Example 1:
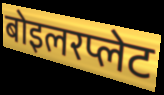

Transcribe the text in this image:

बोइलरप्लेट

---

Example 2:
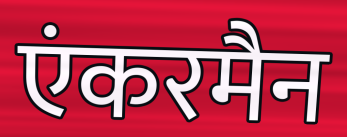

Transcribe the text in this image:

एंकरमैन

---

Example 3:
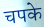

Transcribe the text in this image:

चपके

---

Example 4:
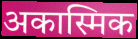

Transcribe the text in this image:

अकास्मिक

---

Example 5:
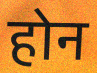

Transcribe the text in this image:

होन